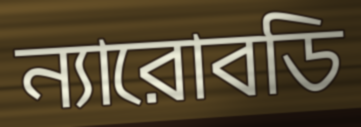
ন্যারোবডি